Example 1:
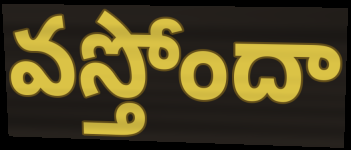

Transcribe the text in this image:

వస్తోందా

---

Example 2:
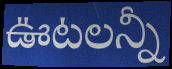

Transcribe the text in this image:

ఊటలన్నీ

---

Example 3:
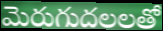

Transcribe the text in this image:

మెరుగుదలలతో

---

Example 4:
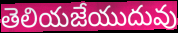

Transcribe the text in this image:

తెలియజేయుదువు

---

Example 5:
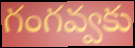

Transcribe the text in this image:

గంగవ్వకు